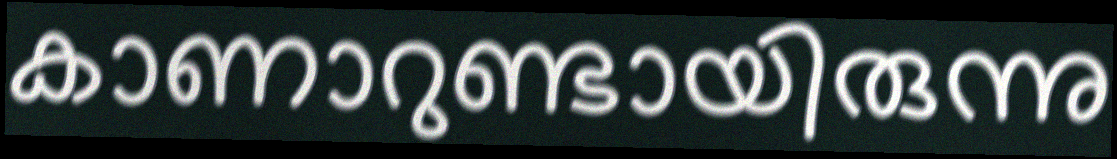
കാണാറുണ്ടായിരുന്നു